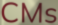
CMs